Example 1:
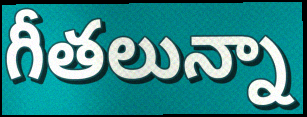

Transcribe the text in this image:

గీతలున్నా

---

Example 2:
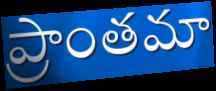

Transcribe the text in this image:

ప్రాంతమా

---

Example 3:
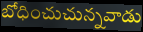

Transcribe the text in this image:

బోధించుచున్నవాడు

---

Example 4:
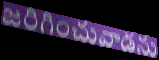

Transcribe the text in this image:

జరిగించువాడను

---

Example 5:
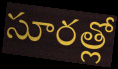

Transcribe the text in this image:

సూరత్లో